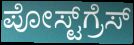
ಪೋಸ್ಟ್‌ಗ್ರೆಸ್